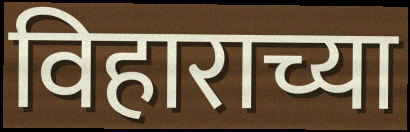
विहाराच्या